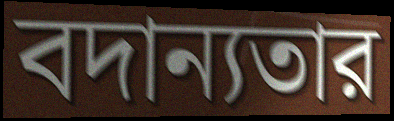
বদান্যতার